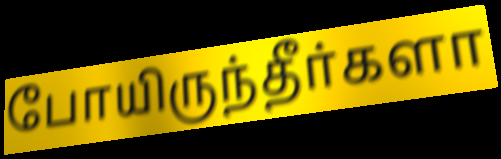
போயிருந்தீர்களா